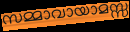
സമ്മാവായാമസ്സ